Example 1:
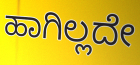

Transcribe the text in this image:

ಹಾಗಿಲ್ಲದೇ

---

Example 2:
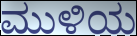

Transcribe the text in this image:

ಮುಳಿಯ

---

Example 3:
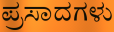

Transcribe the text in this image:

ಪ್ರಸಾದಗಳು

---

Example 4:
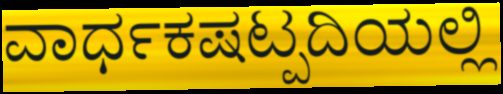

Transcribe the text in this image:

ವಾರ್ಧಕಷಟ್ಪದಿಯಲ್ಲಿ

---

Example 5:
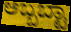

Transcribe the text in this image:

ಅಬ್ಬಬ್ಟಾ